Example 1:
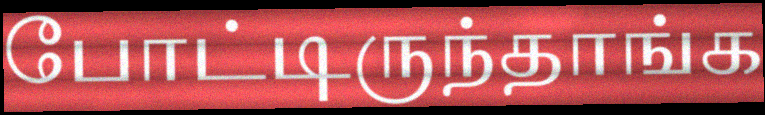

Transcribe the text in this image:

போட்டிருந்தாங்க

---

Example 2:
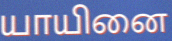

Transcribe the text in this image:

யாயினை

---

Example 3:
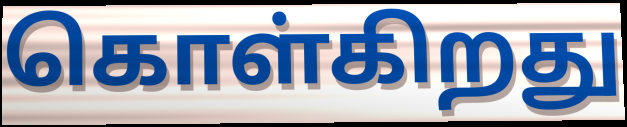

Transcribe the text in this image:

கொள்கிறது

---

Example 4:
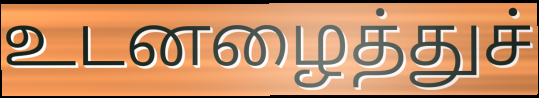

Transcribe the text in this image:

உடனழைத்துச்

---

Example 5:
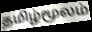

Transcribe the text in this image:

தமிழ்மூலம்